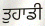
ਤੁਹਾਡੀ